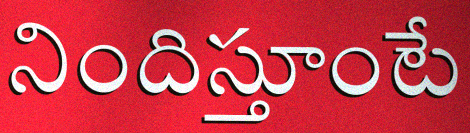
నిందిస్తూంటే